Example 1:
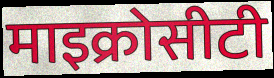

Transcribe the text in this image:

माइक्रोसीटी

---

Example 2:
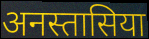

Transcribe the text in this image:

अनस्तासिया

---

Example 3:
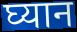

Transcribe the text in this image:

घ्यान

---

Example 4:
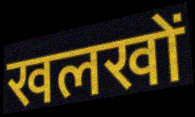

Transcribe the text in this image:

खलखों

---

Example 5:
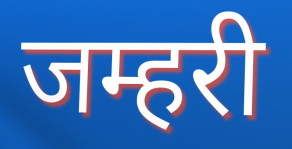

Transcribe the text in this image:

जम्हरी